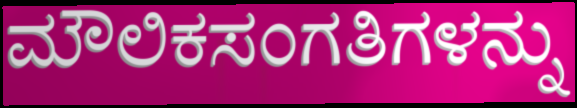
ಮೌಲಿಕಸಂಗತಿಗಳನ್ನು